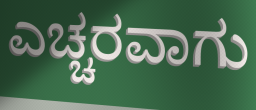
ಎಚ್ಚರವಾಗು